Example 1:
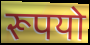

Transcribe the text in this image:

रूपयो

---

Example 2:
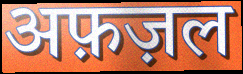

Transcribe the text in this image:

अफ़ज़ल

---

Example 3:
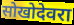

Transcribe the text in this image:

सोखोदेवरा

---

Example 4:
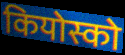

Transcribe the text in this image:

कियोस्को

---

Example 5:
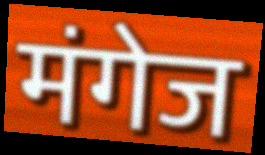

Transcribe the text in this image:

मंगेज